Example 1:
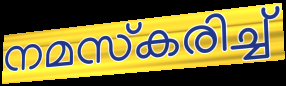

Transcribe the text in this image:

നമസ്‌കരിച്ച്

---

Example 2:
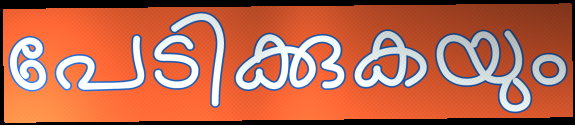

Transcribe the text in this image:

പേടിക്കുകയും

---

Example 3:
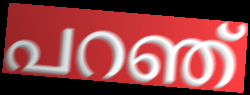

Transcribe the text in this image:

പറഞ്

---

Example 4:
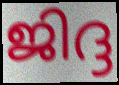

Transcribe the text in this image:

ജിദ്ദ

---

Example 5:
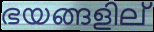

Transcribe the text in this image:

ഭയങ്ങളില്